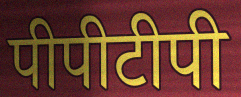
पीपीटीपी